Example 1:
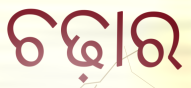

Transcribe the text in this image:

ଚଢ଼ାର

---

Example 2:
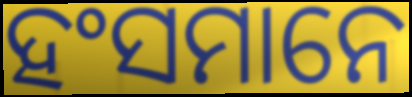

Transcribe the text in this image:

ହଂସମାନେ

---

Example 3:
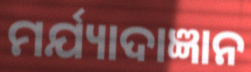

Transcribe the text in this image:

ମର୍ଯ୍ୟାଦାଜ୍ଞାନ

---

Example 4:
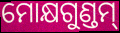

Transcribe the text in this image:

ମୋକ୍ଷଗୁଣ୍ଡମ୍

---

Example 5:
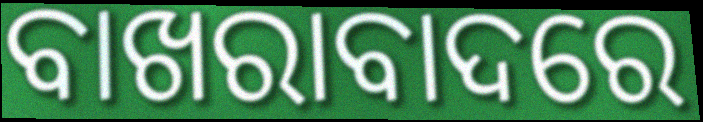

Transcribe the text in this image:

ବାଖରାବାଦରେ